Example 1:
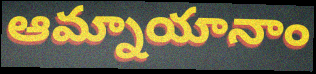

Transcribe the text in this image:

ఆమ్నాయానాం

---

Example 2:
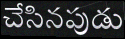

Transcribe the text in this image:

చేసినపుడు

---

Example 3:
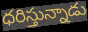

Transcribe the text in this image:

ధరిస్తున్నాడు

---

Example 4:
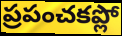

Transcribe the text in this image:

ప్రపంచకప్లో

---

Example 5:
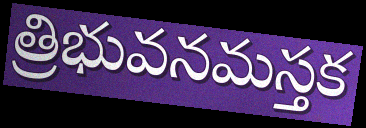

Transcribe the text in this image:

త్రిభువనమస్తక